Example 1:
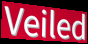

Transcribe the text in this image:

Veiled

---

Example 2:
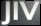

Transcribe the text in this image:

JIV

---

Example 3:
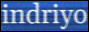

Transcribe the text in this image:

indriyo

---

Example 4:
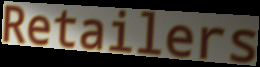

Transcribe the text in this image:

Retailers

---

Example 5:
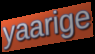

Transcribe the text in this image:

yaarige